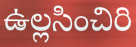
ఉల్లసించిరి